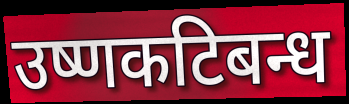
उष्णकटिबन्ध